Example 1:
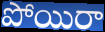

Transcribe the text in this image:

పోయిరా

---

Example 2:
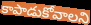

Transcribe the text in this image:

కాపాడుకోవాలని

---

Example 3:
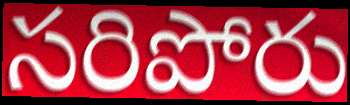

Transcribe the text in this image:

సరిపోరు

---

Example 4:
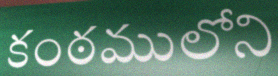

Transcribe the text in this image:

కంఠములోని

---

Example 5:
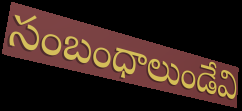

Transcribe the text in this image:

సంబంధాలుండేవి